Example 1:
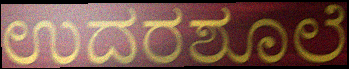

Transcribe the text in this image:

ಉದರಶೂಲೆ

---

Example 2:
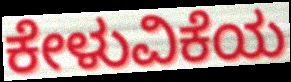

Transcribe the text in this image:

ಕೇಳುವಿಕೆಯ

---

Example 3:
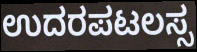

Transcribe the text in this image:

ಉದರಪಟಲಸ್ಸ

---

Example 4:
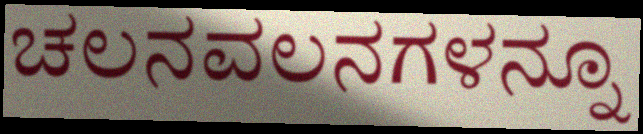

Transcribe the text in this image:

ಚಲನವಲನಗಳನ್ನೂ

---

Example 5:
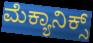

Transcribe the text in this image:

ಮೆಕ್ಯಾನಿಕ್ಸ್